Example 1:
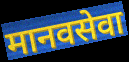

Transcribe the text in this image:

मानवसेवा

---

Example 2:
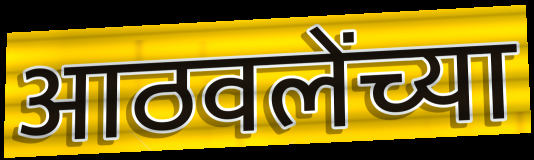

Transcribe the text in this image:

आठवलेंच्या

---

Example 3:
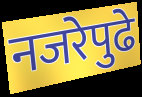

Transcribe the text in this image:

नजरेपुढे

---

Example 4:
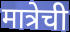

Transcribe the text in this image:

मात्रेची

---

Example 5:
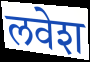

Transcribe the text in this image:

लवेश